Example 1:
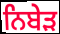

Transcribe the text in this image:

ਨਿਬੇੜ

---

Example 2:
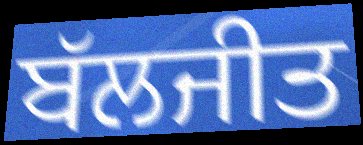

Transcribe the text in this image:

ਬੱਲਜੀਤ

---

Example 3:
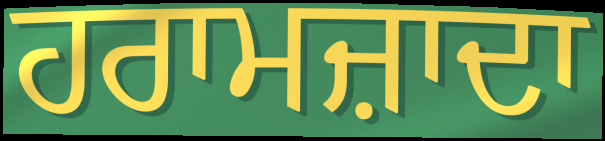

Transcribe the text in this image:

ਹਰਾਮਜ਼ਾਦਾ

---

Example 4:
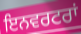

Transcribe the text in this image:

ਇਨਵਰਟਰਾਂ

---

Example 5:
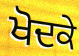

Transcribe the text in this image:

ਖੋਦਕੇ